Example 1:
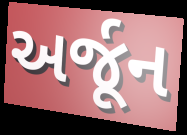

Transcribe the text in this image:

અર્જૂન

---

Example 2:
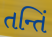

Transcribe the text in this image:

તન્તિં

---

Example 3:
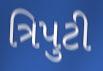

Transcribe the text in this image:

ત્રિપુટી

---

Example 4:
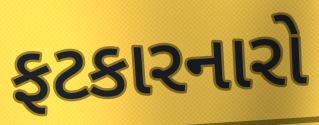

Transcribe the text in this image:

ફટકારનારો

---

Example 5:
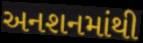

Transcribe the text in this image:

અનશનમાંથી